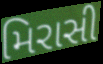
મિરાસી